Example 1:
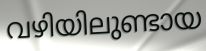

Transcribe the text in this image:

വഴിയിലുണ്ടായ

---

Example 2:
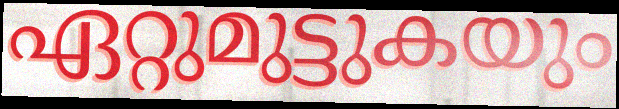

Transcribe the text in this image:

ഏറ്റുമുട്ടുകയും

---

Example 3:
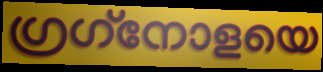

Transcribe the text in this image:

ഗ്രഗ്‌നോളയെ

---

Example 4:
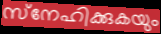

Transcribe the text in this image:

സ്‌നേഹിക്കുകയും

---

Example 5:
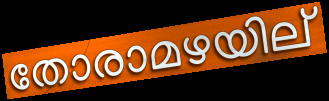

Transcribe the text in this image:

തോരാമഴയില്